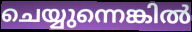
ചെയ്യുന്നെങ്കിൽ